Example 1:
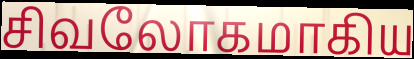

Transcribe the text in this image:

சிவலோகமாகிய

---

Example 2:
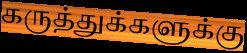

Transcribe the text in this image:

கருத்துக்களுக்கு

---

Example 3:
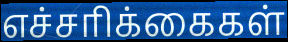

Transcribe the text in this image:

எச்சரிக்கைகள்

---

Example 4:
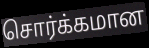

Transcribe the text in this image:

சொர்க்கமான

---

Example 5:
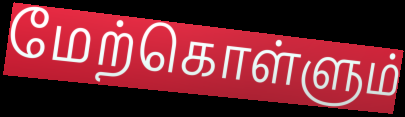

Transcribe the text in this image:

மேற்கொள்ளும்